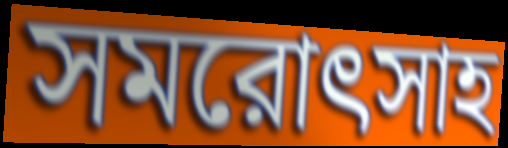
সমরোৎসাহ